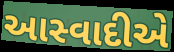
આસ્વાદીએ